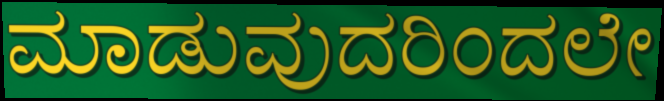
ಮಾಡುವುದರಿಂದಲೇ